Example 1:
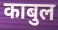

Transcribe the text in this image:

काबुल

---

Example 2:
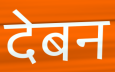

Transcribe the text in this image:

देबन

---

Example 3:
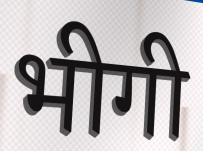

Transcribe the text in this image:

भीगी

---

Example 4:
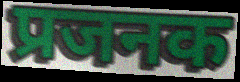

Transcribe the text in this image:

प्रजनक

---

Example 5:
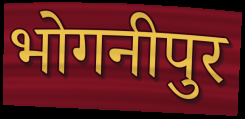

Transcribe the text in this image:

भोगनीपुर